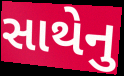
સાથેનુ